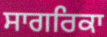
ਸਾਗਰਿਕਾ